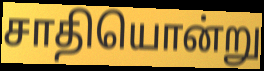
சாதியொன்று